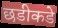
छडीकडे